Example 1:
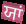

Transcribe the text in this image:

ਯਾਂ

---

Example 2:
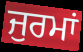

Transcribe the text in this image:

ਜੁਰਮਾਂ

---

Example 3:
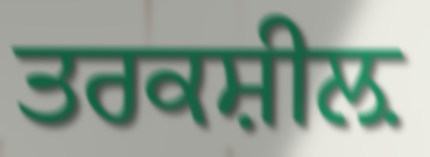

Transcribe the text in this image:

ਤਰਕਸ਼ੀਲ਼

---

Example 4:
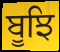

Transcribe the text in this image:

ਬੂਝਿ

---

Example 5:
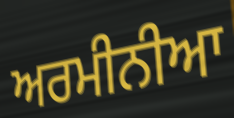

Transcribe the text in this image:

ਅਰਮੀਨੀਆ